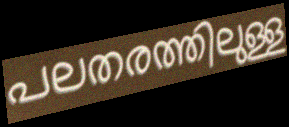
പലതരത്തിലുള്ള